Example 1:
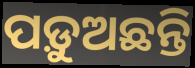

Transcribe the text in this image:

ପଡ଼ୁଅଛନ୍ତି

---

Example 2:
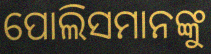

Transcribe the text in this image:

ପୋଲିସମାନଙ୍କୁ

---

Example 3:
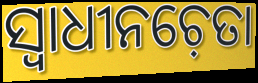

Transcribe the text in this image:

ସ୍ୱାଧୀନଚ଼େତା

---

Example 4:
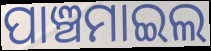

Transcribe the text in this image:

ପାଞ୍ଚମାଇଲ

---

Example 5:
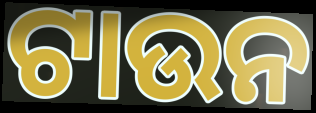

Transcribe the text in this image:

ଟାଉନ